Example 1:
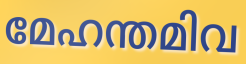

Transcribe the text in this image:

മേഹന്തമിവ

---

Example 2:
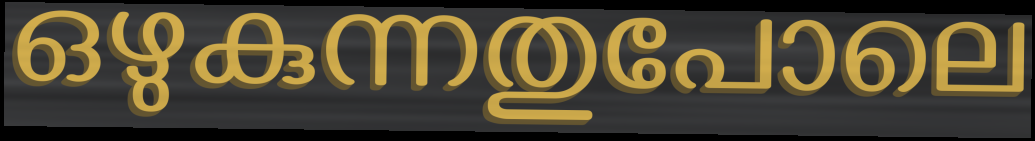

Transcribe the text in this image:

ഒഴുകുന്നതുപോലെ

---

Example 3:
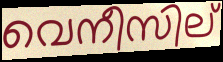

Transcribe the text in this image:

വെനീസില്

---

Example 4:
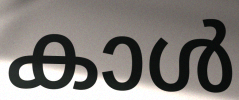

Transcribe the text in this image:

കാൾ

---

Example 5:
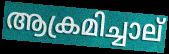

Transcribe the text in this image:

ആക്രമിച്ചാല്